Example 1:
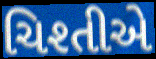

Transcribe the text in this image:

ચિશ્તીએ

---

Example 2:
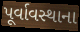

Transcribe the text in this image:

પૂર્વાવસ્થાના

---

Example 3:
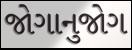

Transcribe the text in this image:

જોગાનુજોગ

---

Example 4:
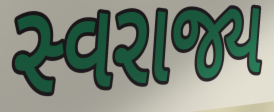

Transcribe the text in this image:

સ્વરાજ્ય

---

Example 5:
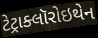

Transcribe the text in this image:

ટેટ્રાક્લૉરોઇથેન